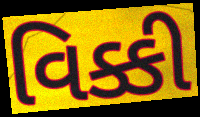
વિક્કી